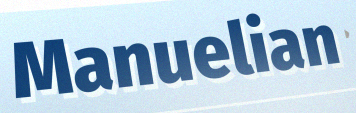
Manuelian